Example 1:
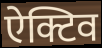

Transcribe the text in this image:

ऐक्टिव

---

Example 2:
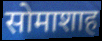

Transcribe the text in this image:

सोमाशाह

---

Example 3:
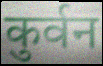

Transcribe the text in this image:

कुर्वन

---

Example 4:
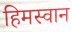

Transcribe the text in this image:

हिमस्वान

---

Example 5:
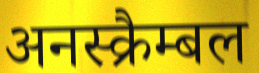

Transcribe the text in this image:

अनस्क्रैम्बल